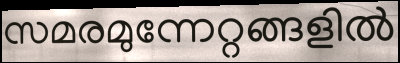
സമരമുന്നേറ്റങ്ങളിൽ